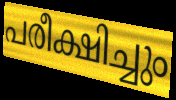
പരീക്ഷിച്ചും